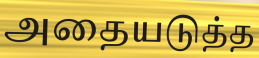
அதையடுத்த